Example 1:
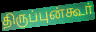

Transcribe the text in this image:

திருப்புன்கூர்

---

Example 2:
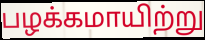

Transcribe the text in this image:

பழக்கமாயிற்று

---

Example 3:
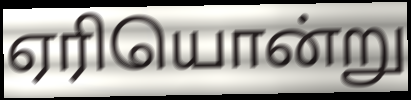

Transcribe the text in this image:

ஏரியொன்று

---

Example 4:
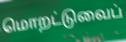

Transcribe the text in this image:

மொறட்டுவைப்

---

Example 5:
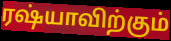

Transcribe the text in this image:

ரஷ்யாவிற்கும்